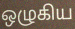
ஒழுகிய